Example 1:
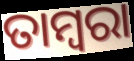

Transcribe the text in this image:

ତାମ୍ବରା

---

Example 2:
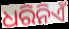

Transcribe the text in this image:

ଧରିନିଏଁ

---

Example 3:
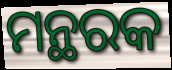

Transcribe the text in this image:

ମନ୍ଥରକ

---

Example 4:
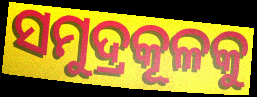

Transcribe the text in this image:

ସମୁଦ୍ରକୂଳକୁ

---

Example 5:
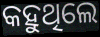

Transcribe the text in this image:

କହୁଥିଲେ